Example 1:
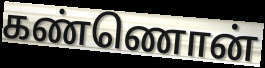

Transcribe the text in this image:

கண்ணொன்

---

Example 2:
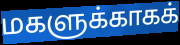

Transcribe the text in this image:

மகளுக்காகக்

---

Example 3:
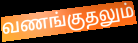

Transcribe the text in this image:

வணங்குதலும்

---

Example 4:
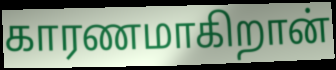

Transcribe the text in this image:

காரணமாகிறான்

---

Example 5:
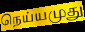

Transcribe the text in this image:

நெய்யமுது